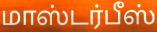
மாஸ்டர்பீஸ்